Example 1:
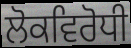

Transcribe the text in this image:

ਲੋਕਵਿਰੋਧੀ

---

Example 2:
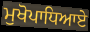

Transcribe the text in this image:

ਮੁਖੋਪਾਧਿਆਏ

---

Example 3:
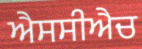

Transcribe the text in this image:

ਐਸਸੀਐਚ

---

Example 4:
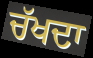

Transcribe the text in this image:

ਚੱਖਦਾ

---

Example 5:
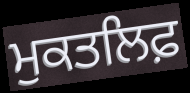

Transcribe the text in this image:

ਮੁਕਤਲਿਫ਼